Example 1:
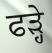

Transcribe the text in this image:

ਫੜ੍ਹੇ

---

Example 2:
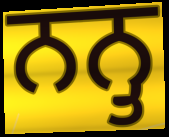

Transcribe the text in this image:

ਨਨ੍ਤ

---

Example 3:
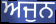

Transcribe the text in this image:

ਅਜੁਨ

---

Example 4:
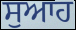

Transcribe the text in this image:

ਸੁਆਹ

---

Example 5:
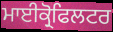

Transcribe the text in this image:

ਮਾਈਕ੍ਰੋਫਿਲਟਰ